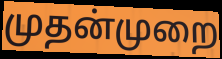
முதன்முறை